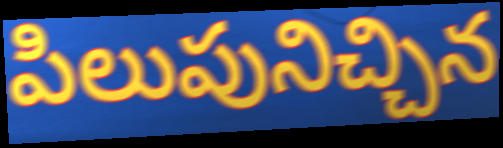
పిలుపునిచ్చిన